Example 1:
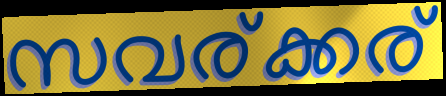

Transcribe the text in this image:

സവര്ക്കര്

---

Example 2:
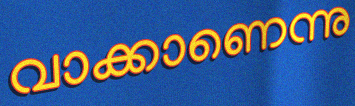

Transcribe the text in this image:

വാക്കാണെന്നു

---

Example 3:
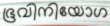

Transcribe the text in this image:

ഭൂവിനിയോഗ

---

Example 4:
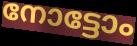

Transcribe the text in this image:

നോട്ടോം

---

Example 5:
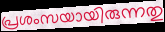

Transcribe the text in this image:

പ്രശംസയായിരുന്നതു